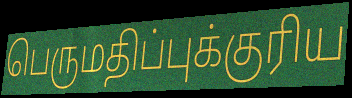
பெருமதிப்புக்குரிய